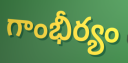
గాంభీర్యం